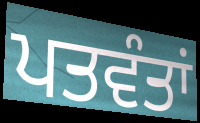
ਪਤਵੰਤਾਂ